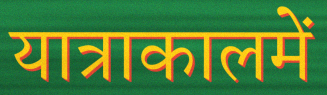
यात्राकालमें